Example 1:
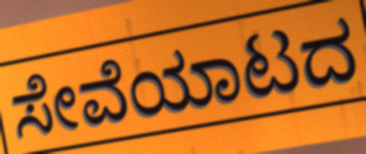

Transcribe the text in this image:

ಸೇವೆಯಾಟದ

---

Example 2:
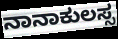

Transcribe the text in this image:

ನಾನಾಕುಲಸ್ಸ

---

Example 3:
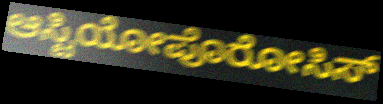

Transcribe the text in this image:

ಆಸ್ಟಿಯೋಪೊರೋಸಿಸ್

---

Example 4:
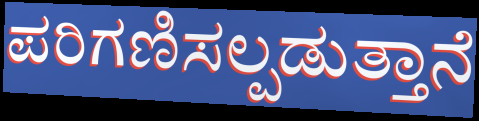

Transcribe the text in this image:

ಪರಿಗಣಿಸಲ್ಪಡುತ್ತಾನೆ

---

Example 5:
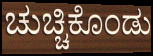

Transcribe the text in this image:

ಚುಚ್ಚಿಕೊಂಡು